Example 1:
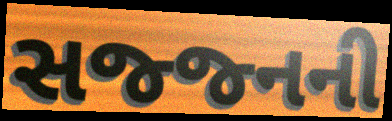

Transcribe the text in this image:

સજ્જ્નની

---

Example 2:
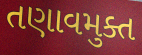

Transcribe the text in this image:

તણાવમુક્ત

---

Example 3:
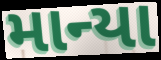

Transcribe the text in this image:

માન્યા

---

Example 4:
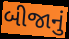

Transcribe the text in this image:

બીજાનું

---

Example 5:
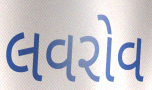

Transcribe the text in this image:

લવરોવ